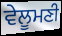
ਵੇਲੂਮਣੀ